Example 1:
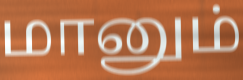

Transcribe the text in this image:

மானும்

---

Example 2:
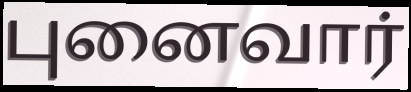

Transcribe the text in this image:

புனைவார்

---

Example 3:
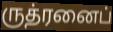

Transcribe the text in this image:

ருத்ரனைப்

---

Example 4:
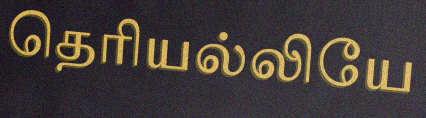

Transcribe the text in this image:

தெரியல்லியே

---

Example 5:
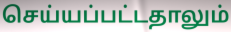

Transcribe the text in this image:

செய்யப்பட்டதாலும்